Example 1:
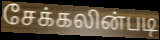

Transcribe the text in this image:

சேக்கலின்படி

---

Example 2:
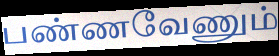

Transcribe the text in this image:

பண்ணவேணும்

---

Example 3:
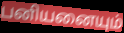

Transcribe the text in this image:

பனியனையும்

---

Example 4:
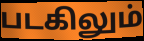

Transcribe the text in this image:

படகிலும்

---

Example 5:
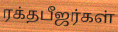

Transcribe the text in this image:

ரக்தபீஜர்கள்